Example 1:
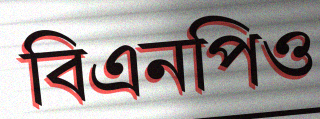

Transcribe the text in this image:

বিএনপিও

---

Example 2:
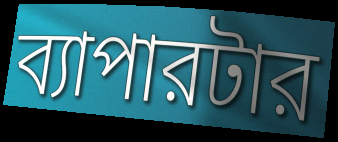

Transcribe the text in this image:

ব্যাপারটার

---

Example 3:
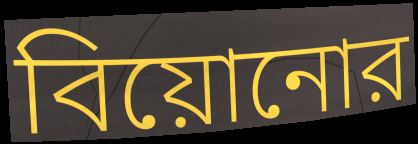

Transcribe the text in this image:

বিয়োনোর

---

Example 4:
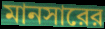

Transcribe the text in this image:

মানসারের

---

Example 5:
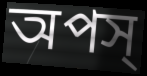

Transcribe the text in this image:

অপস্